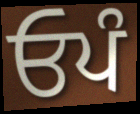
ਓਪੰ